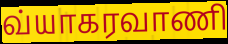
வ்யாகரவாணி